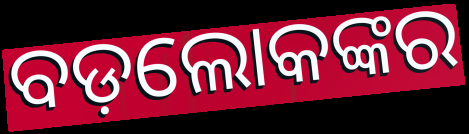
ବଡ଼ଲୋକଙ୍କର